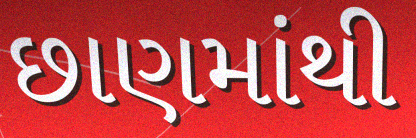
છાણમાંથી